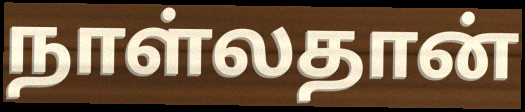
நாள்லதான்